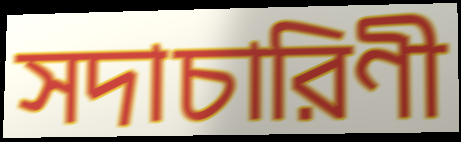
সদাচারিণী